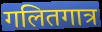
गलितगात्र